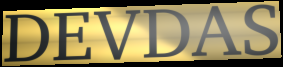
DEVDAS